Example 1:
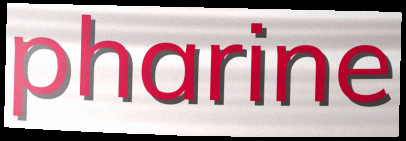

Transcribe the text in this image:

pharine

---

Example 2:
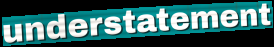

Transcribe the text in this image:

understatement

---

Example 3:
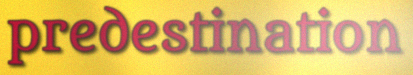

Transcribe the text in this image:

predestination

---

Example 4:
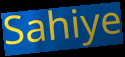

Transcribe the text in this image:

Sahiye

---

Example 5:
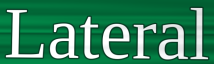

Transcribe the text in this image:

Lateral